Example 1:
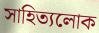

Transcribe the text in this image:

সাহিত্যলোক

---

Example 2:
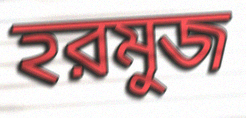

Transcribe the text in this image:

হরমুজ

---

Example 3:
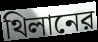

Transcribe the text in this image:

থিলানের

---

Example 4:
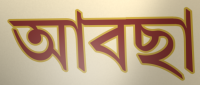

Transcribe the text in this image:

আবছা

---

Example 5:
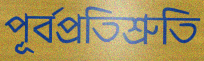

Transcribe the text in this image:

পূর্বপ্রতিশ্রুতি